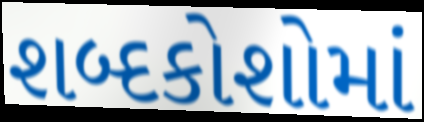
શબ્દકોશોમાં